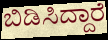
ಬಿಡಿಸಿದ್ದಾರೆ